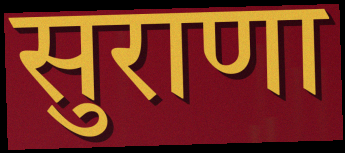
सुराणा